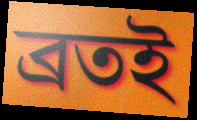
ব্রতই